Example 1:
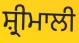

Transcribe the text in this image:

ਸ਼੍ਰੀਮਾਲੀ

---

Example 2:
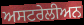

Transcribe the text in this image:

ਅਸਟਰੇਲੀਅਨ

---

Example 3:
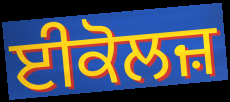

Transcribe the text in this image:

ਈਕੋਲਜ਼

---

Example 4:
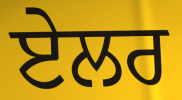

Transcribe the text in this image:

ਏਲਰ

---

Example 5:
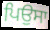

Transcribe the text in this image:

ਪਿਉਸਾ